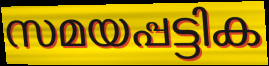
സമയപ്പട്ടിക